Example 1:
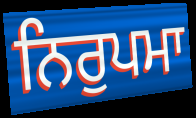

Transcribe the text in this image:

ਨਿਰੁਪਮਾ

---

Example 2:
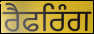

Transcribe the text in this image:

ਰੈਫਰਿੰਗ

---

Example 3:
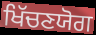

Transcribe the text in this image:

ਖਿੱਚਣਯੋਗ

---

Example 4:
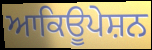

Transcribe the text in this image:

ਆਕਿਊਪੇਸ਼ਨ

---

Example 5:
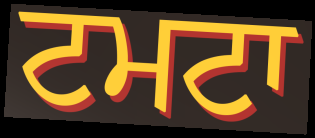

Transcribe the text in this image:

ਟਮਟਾ